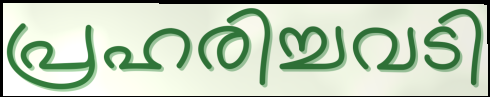
പ്രഹരിച്ചവടി